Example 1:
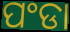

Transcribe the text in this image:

ପଂଡା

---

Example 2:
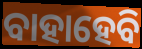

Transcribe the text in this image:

ବାହାହେବି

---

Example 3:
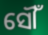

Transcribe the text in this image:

ସୌଁ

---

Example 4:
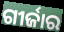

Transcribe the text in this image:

ଗୀର୍ଜାର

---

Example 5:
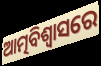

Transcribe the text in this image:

ଆତ୍ମବିଶ୍ଵାସରେ